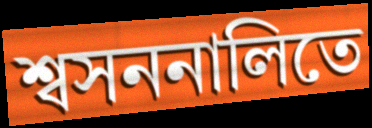
শ্বসননালিতে